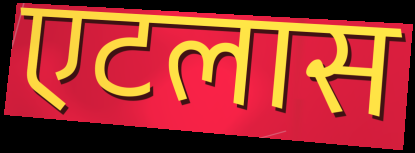
एटलास